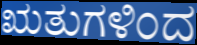
ಋತುಗಳಿಂದ